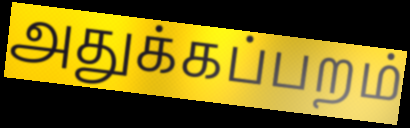
அதுக்கப்பறம்